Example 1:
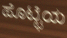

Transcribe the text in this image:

ಹೊಟ್ಟೆಯ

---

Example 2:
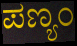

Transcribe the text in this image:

ಪಣ್ಯಂ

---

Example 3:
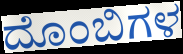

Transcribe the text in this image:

ದೊಂಬಿಗಳ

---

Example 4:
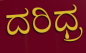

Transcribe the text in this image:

ದರಿಧ್ರ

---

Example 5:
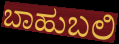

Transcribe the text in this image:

ಬಾಹುಬಲಿ